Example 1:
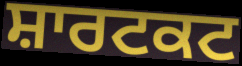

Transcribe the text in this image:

ਸ਼ਾਰਟਕਟ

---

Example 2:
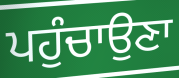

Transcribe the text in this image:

ਪਹੁੰਚਾਉਣਾ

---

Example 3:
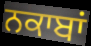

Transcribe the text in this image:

ਨਕਾਬਾਂ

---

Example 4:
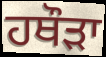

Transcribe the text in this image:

ਹਥੌੜਾ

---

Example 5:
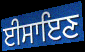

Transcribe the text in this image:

ਈਸਾਇਣ